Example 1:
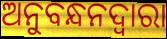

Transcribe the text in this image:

ଅନୁବନ୍ଧନଦ୍ୱାରା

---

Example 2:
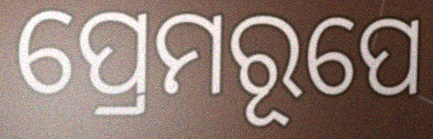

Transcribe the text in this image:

ପ୍ରେମରୂପେ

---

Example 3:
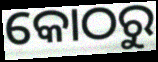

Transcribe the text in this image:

କୋଠରୁ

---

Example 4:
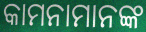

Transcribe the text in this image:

କାମନାମାନଙ୍କ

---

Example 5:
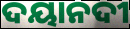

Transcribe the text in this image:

ଦୟାନଦୀ